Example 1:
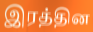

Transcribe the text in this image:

இரத்தின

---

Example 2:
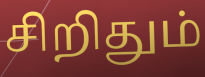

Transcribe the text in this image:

சிறிதும்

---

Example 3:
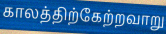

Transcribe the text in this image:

காலத்திற்கேற்றவாறு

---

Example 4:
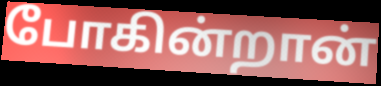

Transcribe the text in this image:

போகின்றான்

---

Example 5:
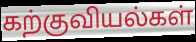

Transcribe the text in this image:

கற்குவியல்கள்